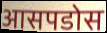
आसपडोस